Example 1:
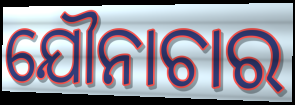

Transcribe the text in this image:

ଯୌନାଚାର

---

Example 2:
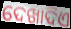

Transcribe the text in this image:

ଦେଖାଦିଏ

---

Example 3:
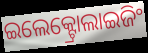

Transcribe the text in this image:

ଇଲେକ୍ଟ୍ରୋଲାଇଜିଂ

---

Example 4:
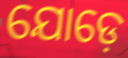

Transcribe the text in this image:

ଯୋଡ଼େ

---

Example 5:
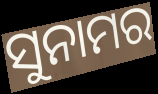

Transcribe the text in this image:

ସୁନାମର